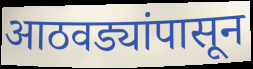
आठवड्यांपासून